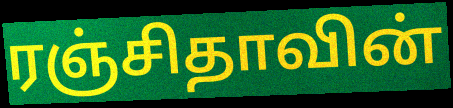
ரஞ்சிதாவின்